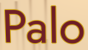
Palo